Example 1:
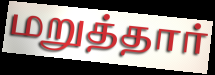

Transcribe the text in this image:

மறுத்தார்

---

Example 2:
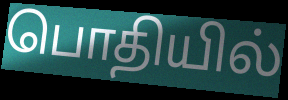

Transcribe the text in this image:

பொதியில்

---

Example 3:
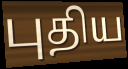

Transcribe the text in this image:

புதிய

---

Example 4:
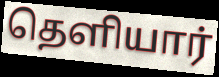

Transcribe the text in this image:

தெளியார்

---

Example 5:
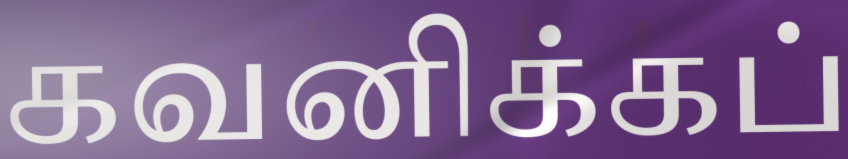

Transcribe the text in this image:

கவனிக்கப்